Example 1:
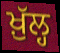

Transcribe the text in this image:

ਖ਼ੁੱਲ੍ਹ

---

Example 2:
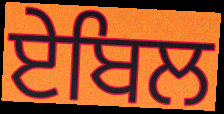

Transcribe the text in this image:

ਏਬਿਲ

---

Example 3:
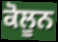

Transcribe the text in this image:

ਕੋਲੂਨ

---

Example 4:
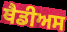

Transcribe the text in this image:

ਥੈਡੀਅਸ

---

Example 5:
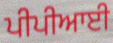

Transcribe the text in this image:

ਪੀਪੀਆਈ